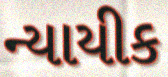
ન્યાયીક